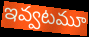
ఇవ్వటమూ